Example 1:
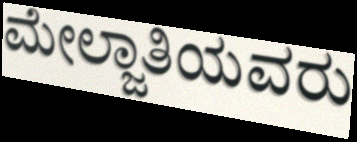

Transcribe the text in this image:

ಮೇಲ್ಜಾತಿಯವರು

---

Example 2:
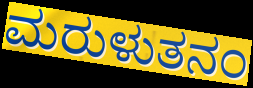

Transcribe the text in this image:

ಮರುಳುತನಂ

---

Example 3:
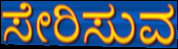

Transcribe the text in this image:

ಸೇರಿಸುವ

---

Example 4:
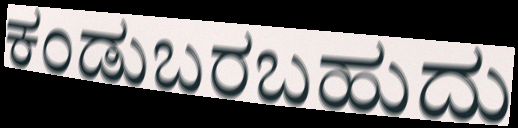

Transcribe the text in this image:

ಕಂಡುಬರಬಹುದು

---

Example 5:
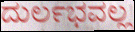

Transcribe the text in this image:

ದುರ್ಲಭವಲ್ಲ